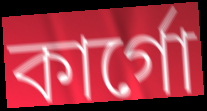
কার্গো